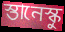
স্তানেস্কু